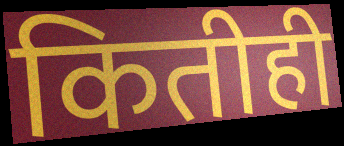
कितीही